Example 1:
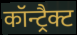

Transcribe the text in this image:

कॉन्ट्रैक्ट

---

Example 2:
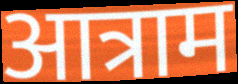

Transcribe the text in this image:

आत्राम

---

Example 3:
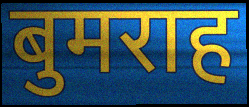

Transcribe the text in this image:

बुमराह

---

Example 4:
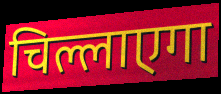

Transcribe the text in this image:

चिल्लाएगा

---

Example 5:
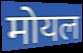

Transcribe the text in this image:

मोयल